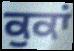
ਕੁਕਾਂ